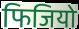
फिजियो